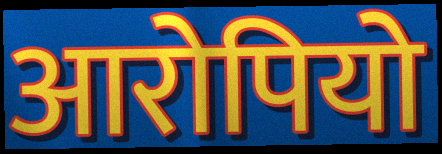
आरोपियो